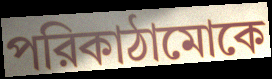
পরিকাঠামোকে